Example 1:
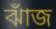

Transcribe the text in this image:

ঝাঁজ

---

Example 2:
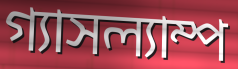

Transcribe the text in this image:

গ্যাসল্যাম্প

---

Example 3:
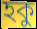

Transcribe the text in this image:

হকু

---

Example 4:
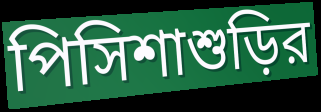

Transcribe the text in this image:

পিসিশাশুড়ির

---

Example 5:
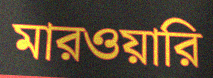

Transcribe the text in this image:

মারওয়ারি